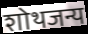
शोथजन्य